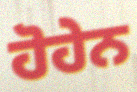
ਹੋਹੇਨ